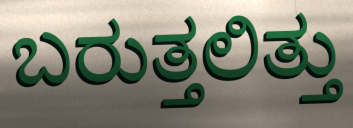
ಬರುತ್ತಲಿತ್ತು